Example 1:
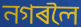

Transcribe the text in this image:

নগৰলৈ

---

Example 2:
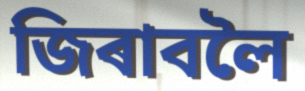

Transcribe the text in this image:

জিৰাবলৈ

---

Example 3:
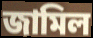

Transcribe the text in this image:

জামিল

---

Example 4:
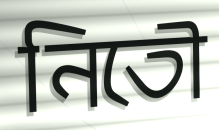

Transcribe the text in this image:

নিতৌ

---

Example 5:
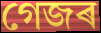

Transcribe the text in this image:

গেজৰ